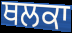
ਥਲਕਾ